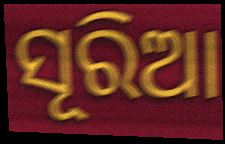
ସୂରିଆ